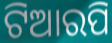
ଟିଆରପି